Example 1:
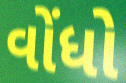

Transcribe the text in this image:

વોંધો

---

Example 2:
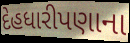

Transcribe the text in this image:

દેહધારીપણાના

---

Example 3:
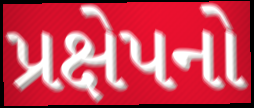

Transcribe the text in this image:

પ્રક્ષેપનો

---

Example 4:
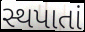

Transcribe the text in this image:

સ્થપાતાં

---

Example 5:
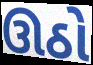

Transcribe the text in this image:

ઊઠો